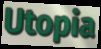
Utopia